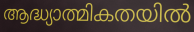
ആദ്ധ്യാത്മികതയിൽ